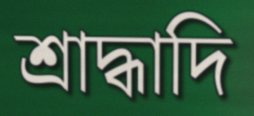
শ্রাদ্ধাদি